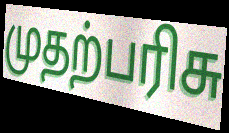
முதற்பரிசு